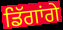
ਡਿੱਗਾਂਗੇ